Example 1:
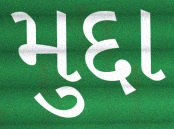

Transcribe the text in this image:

મુદ્દા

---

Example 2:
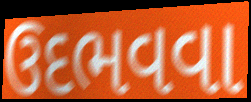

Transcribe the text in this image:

ઉદભવવા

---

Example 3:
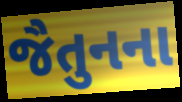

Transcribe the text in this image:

જૈતુનના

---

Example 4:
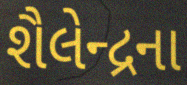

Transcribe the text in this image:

શૈલેન્દ્રના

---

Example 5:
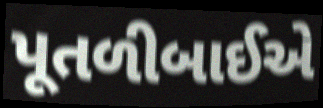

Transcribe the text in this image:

પૂતળીબાઈએ